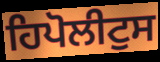
ਹਿਪੋਲੀਟੁਸ